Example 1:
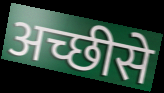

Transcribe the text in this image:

अच्छीसे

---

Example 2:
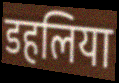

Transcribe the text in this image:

डहलिया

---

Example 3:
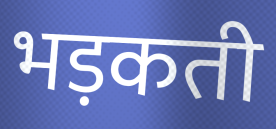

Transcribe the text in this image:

भड़कती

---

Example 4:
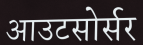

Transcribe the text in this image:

आउटसोर्सर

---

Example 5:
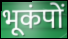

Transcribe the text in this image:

भूकंपों